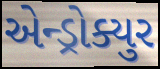
એન્ડ્રોક્યુર